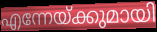
എന്നേയ്ക്കുമായി